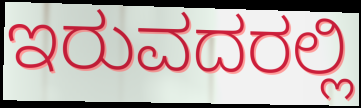
ಇರುವದರಲ್ಲಿ